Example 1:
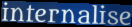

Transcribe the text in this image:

internalise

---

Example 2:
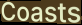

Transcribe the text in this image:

Coasts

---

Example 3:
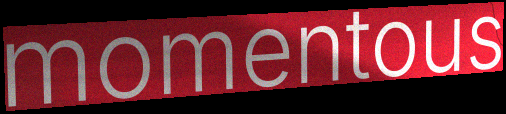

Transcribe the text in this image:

momentous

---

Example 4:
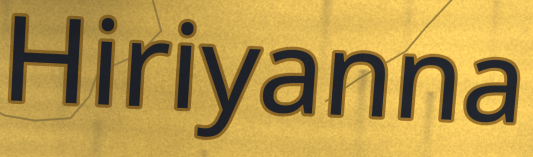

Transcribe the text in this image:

Hiriyanna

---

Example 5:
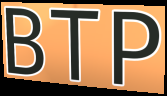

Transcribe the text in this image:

BTP